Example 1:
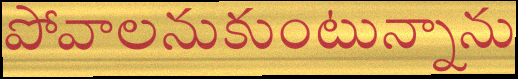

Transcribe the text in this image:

పోవాలనుకుంటున్నాను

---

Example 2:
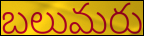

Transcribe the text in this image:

బలుమరు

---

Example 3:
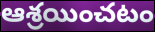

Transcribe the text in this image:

ఆశ్రయించటం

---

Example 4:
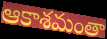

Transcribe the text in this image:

ఆకాశమంతా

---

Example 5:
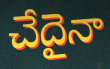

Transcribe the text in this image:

చేదైనా